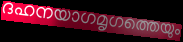
ദഹനയാഗമൃഗത്തെയും